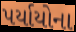
પર્યાયોના